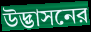
উদ্ভাসনের